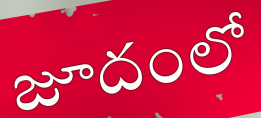
జూదంలో